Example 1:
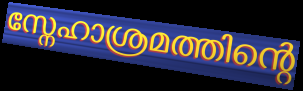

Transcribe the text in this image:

സ്നേഹാശ്രമത്തിന്റെ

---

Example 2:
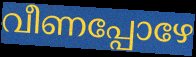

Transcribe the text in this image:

വീണപ്പോഴേ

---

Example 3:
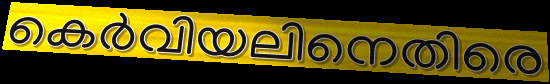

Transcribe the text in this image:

കെർവിയലിനെതിരെ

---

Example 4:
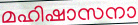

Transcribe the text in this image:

മഹിഷാസനാ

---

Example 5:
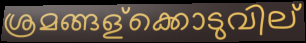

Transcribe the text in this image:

ശ്രമങ്ങള്ക്കൊടുവില്